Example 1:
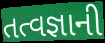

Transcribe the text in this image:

તત્વજ્ઞાની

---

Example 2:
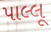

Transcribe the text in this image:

પાલ્લૂ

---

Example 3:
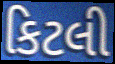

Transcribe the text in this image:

કિટલી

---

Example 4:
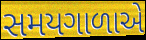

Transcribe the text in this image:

સમયગાળાએ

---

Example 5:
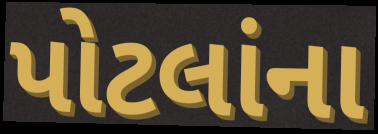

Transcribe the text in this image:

પોટલાંના